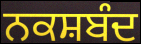
ਨਕਸ਼ਬੰਦ